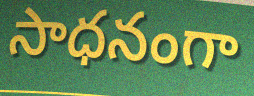
సాధనంగా